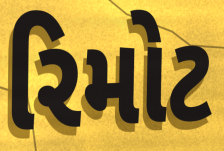
રિમોટ